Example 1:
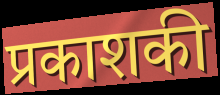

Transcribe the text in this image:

प्रकाशकी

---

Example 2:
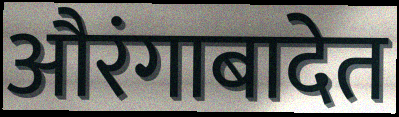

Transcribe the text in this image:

औरंगाबादेत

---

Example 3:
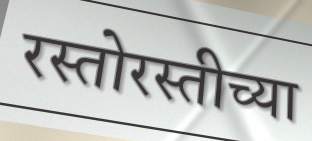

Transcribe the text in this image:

रस्तोरस्तीच्या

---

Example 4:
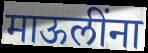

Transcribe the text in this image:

माऊलींना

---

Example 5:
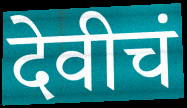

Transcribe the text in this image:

देवीचं